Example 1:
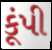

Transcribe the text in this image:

કૂંપી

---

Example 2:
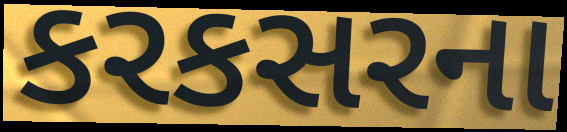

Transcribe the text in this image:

કરકસરના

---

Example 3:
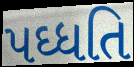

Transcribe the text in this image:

પઘ્ધતિ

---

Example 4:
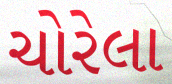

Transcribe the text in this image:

ચોરેલા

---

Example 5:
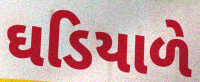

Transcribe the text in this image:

ઘડિયાળે